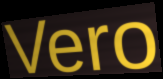
Vero